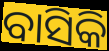
ବାସିକି